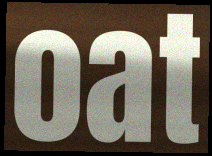
oat